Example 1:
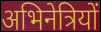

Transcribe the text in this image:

अभिनेत्रियों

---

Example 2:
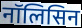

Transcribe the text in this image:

नॉलिसिन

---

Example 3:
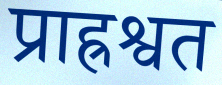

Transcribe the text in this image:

प्राह्रश्वत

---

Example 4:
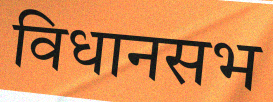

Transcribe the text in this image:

विधानसभ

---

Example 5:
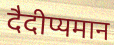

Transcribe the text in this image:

दैदीप्यमान